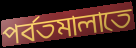
পর্বতমালাতে